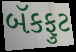
બૅકફુટ